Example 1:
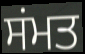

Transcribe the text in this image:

ਸਂਮਤ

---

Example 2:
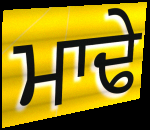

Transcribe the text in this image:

ਮਾਢੇ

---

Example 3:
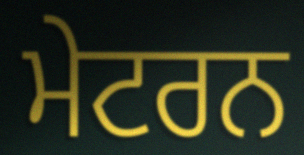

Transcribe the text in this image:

ਮੇਟਰਨ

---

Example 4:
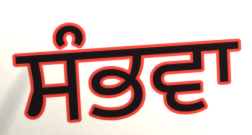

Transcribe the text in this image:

ਸੰਭਵਾ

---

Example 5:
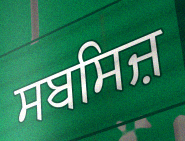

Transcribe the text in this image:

ਸਬਸਿਜ਼